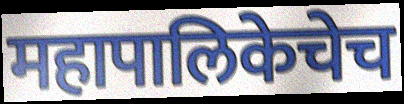
महापालिकेचेच